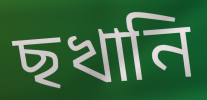
ছখানি